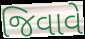
જિવાવે